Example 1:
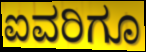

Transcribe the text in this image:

ಐವರಿಗೂ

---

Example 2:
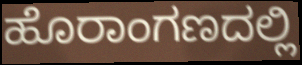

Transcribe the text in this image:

ಹೊರಾಂಗಣದಲ್ಲಿ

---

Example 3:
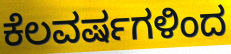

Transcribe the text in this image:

ಕೆಲವರ್ಷಗಳಿಂದ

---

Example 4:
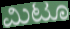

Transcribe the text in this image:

ಮಿಟೂ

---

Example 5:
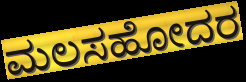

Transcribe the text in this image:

ಮಲಸಹೋದರ